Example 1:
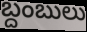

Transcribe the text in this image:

బ్దంబులు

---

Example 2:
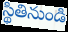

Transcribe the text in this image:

స్థితినుండి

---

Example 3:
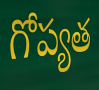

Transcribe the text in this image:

గోప్యత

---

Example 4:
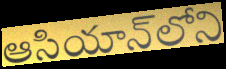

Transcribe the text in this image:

ఆసియాన్‌లోని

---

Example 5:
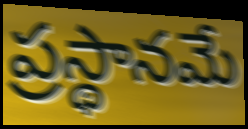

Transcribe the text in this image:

ప్రస్థానమే